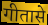
गीतासे